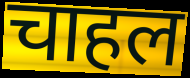
चाहल